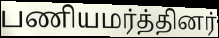
பணியமர்த்தினர்